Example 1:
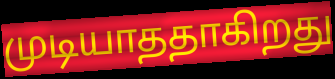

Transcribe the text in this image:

முடியாததாகிறது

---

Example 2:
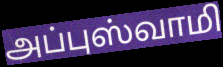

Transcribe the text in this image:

அப்புஸ்வாமி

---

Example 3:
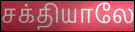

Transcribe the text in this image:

சக்தியாலே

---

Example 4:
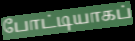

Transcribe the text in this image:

போட்டியாகப்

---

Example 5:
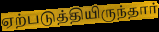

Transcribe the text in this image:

ஏற்படுத்தியிருந்தார்